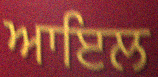
ਆਇਲ